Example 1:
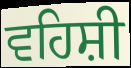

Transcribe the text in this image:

ਵਹਿਸ਼ੀ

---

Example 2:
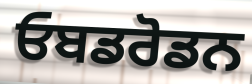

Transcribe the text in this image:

ਓਬਡਰੋਡਨ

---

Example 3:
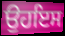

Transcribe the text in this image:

ਉਹਇਸ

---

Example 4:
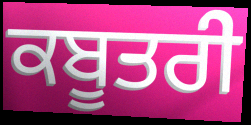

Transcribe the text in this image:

ਕਬੂਤਰੀ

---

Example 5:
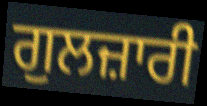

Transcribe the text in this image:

ਗੁਲਜ਼ਾਰੀ